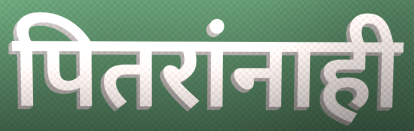
पितरांनाही